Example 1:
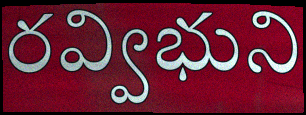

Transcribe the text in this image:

రవ్విభుని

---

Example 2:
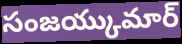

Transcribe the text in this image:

సంజయ్కుమార్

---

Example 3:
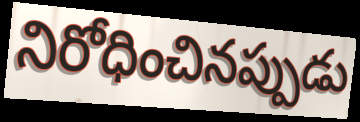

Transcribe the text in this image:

నిరోధించినప్పుడు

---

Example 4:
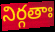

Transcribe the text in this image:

నిర్గతాః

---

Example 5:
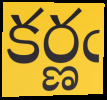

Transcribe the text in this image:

కర్ణఁ